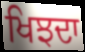
ਖਿਝਦਾ